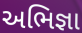
અભિજ્ઞા